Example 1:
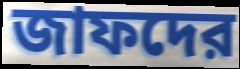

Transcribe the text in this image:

জাফদের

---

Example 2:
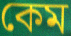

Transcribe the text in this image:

কেম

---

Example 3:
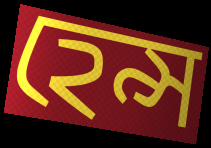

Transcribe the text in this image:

হেন্স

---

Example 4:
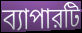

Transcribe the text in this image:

ব্যাপারটি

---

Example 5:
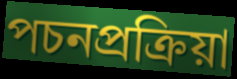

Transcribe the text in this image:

পচনপ্রক্রিয়া